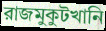
রাজমুকুটখানি